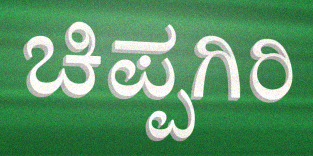
ಚಿಪ್ಪಗಿರಿ